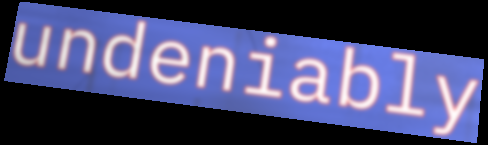
undeniably